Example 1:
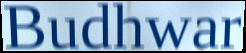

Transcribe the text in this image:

Budhwar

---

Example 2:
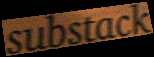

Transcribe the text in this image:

substack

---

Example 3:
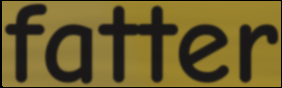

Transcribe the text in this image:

fatter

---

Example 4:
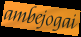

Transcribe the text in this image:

ambejogai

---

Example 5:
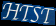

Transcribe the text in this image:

HTST